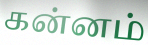
கன்னம்